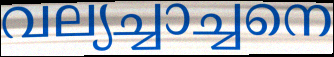
വല്യച്ചാച്ചനെ